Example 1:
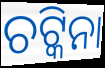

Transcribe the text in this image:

ଚଟ୍କିନା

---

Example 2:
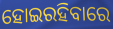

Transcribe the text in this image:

ହୋଇରହିବାରେ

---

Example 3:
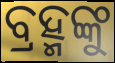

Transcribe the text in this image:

ବ୍ରହ୍ମଙ୍କୁ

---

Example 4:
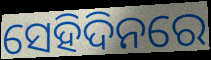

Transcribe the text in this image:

ସେହିଦିନରେ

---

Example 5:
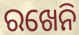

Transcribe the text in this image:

ରଖେନି